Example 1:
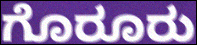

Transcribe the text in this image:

ಗೊರೂರು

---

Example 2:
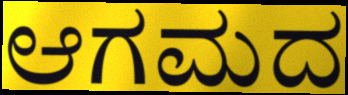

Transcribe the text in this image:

ಆಗಮದ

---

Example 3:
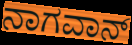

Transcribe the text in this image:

ನಾಗವಾನ್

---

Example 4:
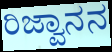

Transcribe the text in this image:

ರಿಜ್ವಾನನ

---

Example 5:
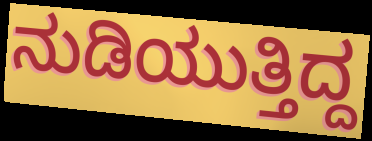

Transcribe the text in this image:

ನುಡಿಯುತ್ತಿದ್ದ